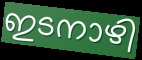
ഇടനാഴി